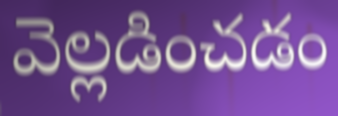
వెల్లడించడం